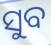
ସୁବ